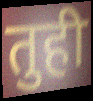
तुही